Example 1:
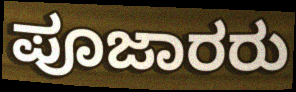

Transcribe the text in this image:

ಪೂಜಾರರು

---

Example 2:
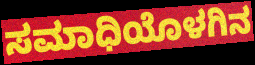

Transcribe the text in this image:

ಸಮಾಧಿಯೊಳಗಿನ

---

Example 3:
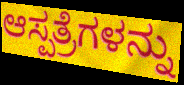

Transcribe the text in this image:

ಆಸ್ಪತ್ರೆಗಳನ್ನು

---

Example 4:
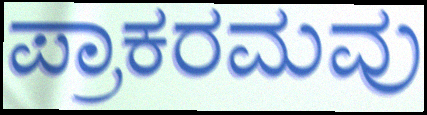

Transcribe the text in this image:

ಪ್ರಾಕರಮವು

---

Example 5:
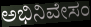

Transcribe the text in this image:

ಅಭಿನಿವೇಸಂ